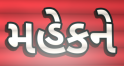
મહેકને